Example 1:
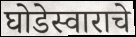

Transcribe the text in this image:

घोडेस्वाराचे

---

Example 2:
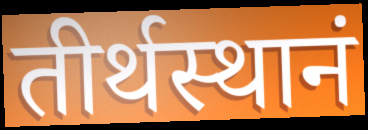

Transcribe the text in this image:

तीर्थस्थानं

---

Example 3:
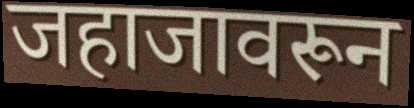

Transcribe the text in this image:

जहाजावरून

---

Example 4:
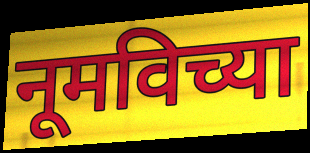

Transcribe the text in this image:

नूमविच्या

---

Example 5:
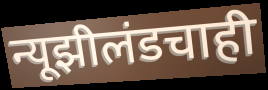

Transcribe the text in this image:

न्यूझीलंडचाही